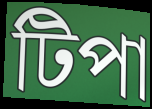
টিপা